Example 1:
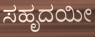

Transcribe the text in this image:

ಸಹೃದಯೀ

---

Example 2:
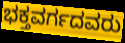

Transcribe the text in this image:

ಭಕ್ತವರ್ಗದವರು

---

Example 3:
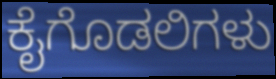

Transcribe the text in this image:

ಕೈಗೊಡಲಿಗಳು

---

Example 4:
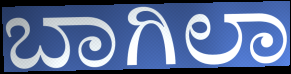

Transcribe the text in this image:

ಬಾಗಿಲಾ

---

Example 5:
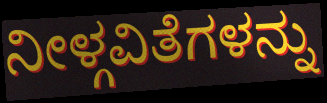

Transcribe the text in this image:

ನೀಳ್ಗವಿತೆಗಳನ್ನು